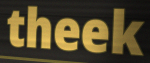
theek